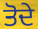
ਤੋਦੇ